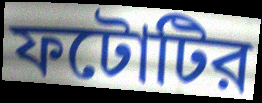
ফটোটির